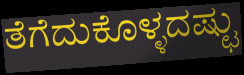
ತೆಗೆದುಕೊಳ್ಳದಷ್ಟು